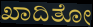
ಖಾದಿತೋ